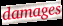
damages